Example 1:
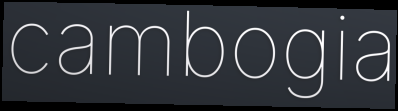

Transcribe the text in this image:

cambogia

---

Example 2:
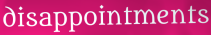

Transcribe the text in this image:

disappointments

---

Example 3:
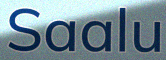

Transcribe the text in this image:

Saalu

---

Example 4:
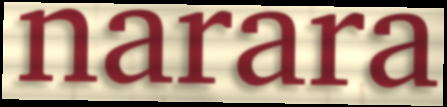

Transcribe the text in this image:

narara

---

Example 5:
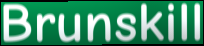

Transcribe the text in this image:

Brunskill